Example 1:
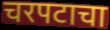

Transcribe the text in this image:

चरपटाचा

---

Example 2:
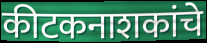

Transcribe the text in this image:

कीटकनाशकांचे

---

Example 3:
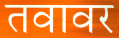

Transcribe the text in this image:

तवावर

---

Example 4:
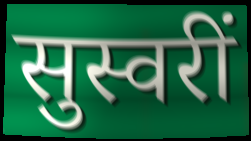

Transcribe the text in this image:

सुस्वरीं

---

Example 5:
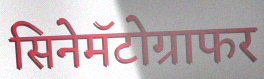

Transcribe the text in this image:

सिनेमॅटोग्राफर